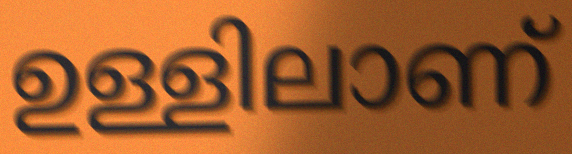
ഉള്ളിലാണ്